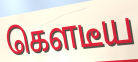
கௌடீய